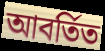
আবর্তিত